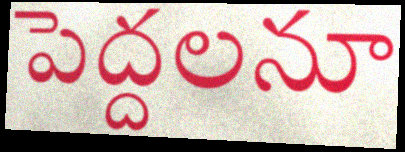
పెద్దలనూ